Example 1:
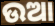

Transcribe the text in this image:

ଉଆ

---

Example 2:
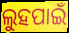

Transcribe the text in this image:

ଲୁହପାଇଁ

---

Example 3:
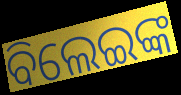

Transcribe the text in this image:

ବିଲେଇଙ୍କ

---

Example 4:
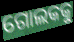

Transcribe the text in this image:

ଗୋଲକକୁ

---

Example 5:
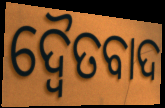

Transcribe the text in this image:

ଦ୍ୱୈତବାଦ